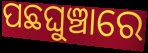
ପଛଘୁଞ୍ଚାରେ